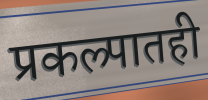
प्रकल्पातही